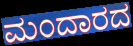
ಮಂದಾರದ